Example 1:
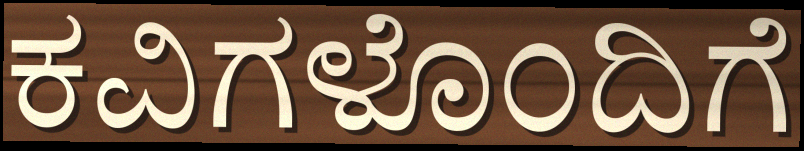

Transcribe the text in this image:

ಕವಿಗಳೊಂದಿಗೆ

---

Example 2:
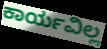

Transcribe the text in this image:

ಕಾರ್ಯವಿಲ್ಲ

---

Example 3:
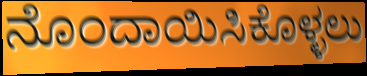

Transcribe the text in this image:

ನೊಂದಾಯಿಸಿಕೊಳ್ಳಲು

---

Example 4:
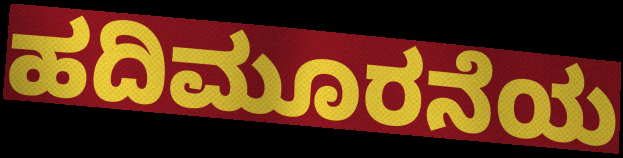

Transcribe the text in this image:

ಹದಿಮೂರನೆಯ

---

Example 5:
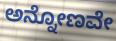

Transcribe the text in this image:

ಅನ್ನೋಣವೇ